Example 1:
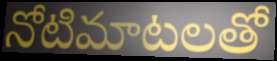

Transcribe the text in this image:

నోటిమాటలతో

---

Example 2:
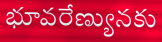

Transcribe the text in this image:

భూవరేణ్యునకు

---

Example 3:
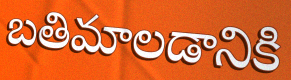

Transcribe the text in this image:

బతిమాలడానికి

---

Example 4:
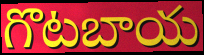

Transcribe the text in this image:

గొటబాయ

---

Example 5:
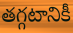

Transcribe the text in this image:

తగ్గటానికీ